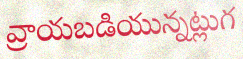
వ్రాయబడియున్నట్లుగ